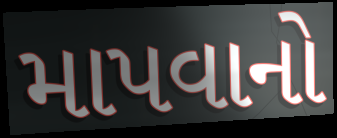
માપવાનો